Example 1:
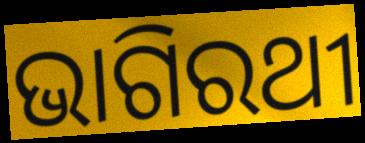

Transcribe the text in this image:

ଭାଗିରଥୀ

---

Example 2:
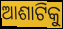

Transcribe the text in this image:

ଆଶାଟିକୁ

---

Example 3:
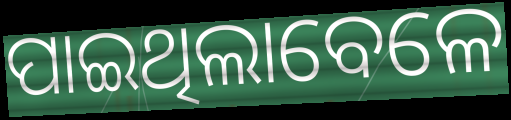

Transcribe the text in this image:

ପାଇଥିଲାବେଳେ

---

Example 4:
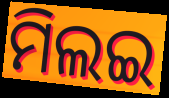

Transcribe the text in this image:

ମିଲଇ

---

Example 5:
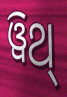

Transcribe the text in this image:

ୱିଥ୍